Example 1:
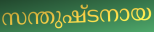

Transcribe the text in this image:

സന്തുഷ്ടനായ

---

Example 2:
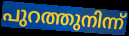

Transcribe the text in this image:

പുറത്തുനിന്ന്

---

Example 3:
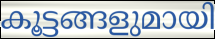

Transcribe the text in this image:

കൂട്ടങ്ങളുമായി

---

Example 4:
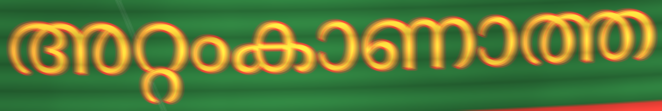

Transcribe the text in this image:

അറ്റംകാണാത്ത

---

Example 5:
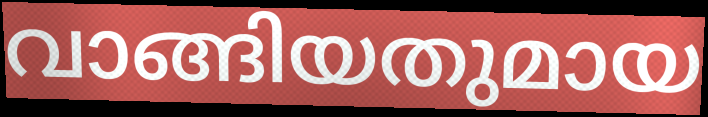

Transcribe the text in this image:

വാങ്ങിയതുമായ